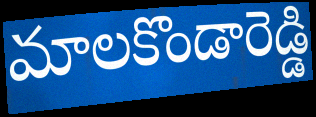
మాలకొండారెడ్డి